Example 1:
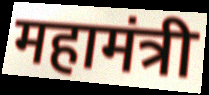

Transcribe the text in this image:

महामंत्री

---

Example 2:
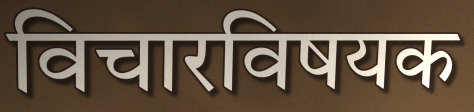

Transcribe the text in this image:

विचारविषयक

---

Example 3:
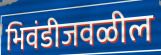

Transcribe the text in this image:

भिवंडीजवळील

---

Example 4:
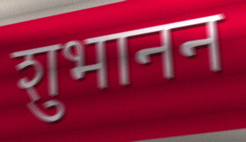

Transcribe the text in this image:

शुभानन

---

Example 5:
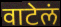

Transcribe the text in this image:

वाटेलं